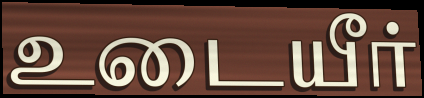
உடையீர்